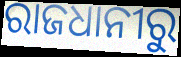
ରାଜଧାନୀରୁ